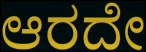
ಆರದೇ